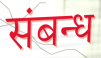
संबन्ध